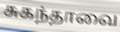
சுகந்தாவை